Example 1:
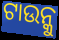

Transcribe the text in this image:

ଟାଉନ୍କୁ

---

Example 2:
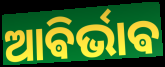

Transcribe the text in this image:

ଆଵିର୍ଭାଵ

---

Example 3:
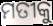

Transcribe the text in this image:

ମତୀକୁ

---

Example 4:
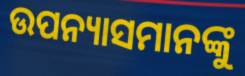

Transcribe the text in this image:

ଉପନ୍ୟାସମାନଙ୍କୁ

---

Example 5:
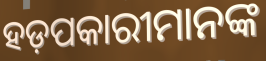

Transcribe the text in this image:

ହଡ଼ପକାରୀମାନଙ୍କ